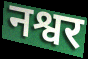
नश्वर